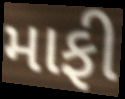
માફી